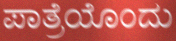
ಪಾತ್ರೆಯೊಂದು